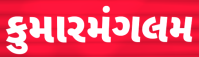
કુમારમંગલમ